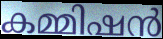
കമ്മിഷൻ